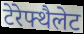
टेरेफ्थैलेट